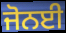
ਜੋਨਈ